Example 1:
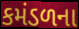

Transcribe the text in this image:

કમંડળના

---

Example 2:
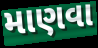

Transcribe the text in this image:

માણવા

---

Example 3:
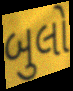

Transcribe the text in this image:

બુલો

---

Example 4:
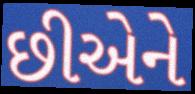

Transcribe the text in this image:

છીએને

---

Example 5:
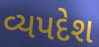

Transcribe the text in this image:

વ્યપદેશ